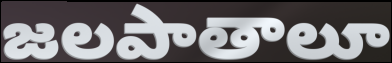
జలపాతాలూ